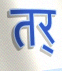
तर्